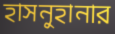
হাসনুহানার